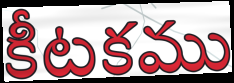
కీటకము